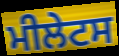
ਮੀਲੇਟਸ